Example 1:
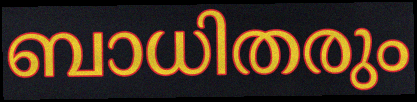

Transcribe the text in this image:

ബാധിതരും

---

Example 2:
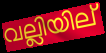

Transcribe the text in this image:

വല്ലിയില്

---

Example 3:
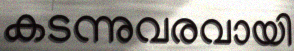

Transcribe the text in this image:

കടന്നുവരവായി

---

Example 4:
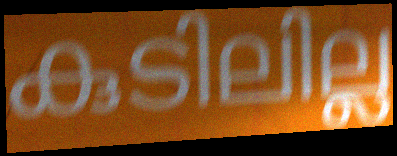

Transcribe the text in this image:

കുടിലില്ല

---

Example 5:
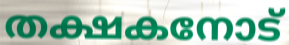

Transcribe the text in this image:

തക്ഷകനോട്